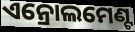
ଏନ୍ରୋଲମେଣ୍ଟ